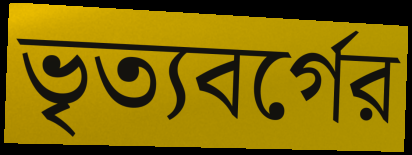
ভৃত্যবর্গের